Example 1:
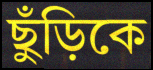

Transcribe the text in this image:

ছুঁড়িকে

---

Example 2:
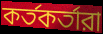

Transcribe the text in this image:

কর্তকর্তারা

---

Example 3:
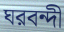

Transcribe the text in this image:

ঘরবন্দী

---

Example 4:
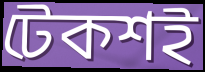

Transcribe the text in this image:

টেকশই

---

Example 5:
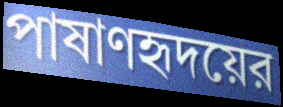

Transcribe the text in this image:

পাষাণহৃদয়ের